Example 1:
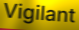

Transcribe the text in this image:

Vigilant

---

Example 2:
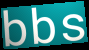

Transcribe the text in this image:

bbs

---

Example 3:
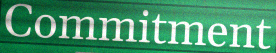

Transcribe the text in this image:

Commitment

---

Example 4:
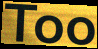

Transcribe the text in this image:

Too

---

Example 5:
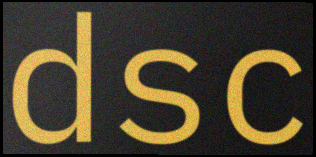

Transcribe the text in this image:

dsc